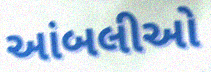
આંબલીઓ